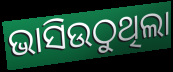
ଭାସିଉଠୁଥିଲା